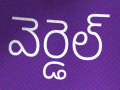
వెర్డెల్